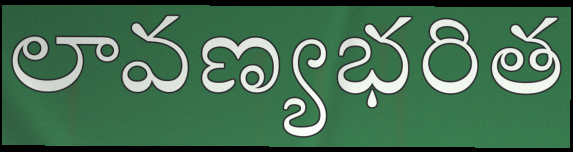
లావణ్యభరిత